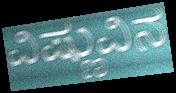
ವಿಷ್ಣುವಿನ